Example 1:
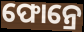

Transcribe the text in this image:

ଫୋନ୍ରେ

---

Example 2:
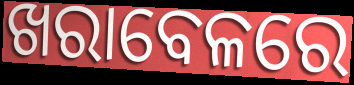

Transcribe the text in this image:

ଖରାବେଳରେ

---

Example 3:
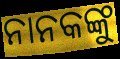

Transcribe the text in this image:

ନାନକଙ୍କୁ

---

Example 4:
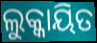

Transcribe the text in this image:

ଲୁକ୍କାୟିତ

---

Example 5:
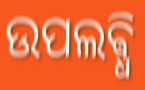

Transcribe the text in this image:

ଉପଲଵ୍ଧି